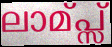
ലാമ്പ്സ്